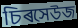
চিৰসেউজ